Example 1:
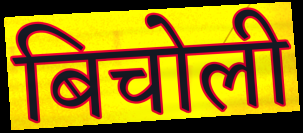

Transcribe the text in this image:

बिचोली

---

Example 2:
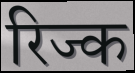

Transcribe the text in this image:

रिज्क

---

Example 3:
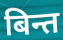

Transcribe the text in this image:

बिन्त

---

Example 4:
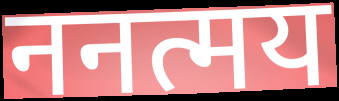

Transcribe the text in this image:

ननत्मय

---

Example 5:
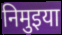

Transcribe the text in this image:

निमुइया